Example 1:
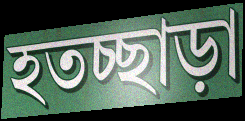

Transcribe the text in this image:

হতচ্ছাড়া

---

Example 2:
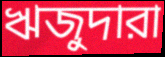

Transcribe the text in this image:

ঋজুদারা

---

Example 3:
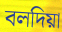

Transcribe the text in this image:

বলদিয়া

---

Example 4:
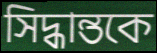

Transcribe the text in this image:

সিদ্ধান্তকে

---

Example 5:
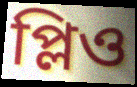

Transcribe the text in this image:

প্লিও